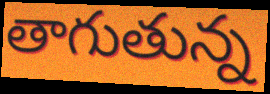
తాగుతున్న